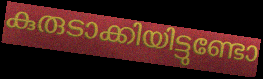
കുരുടാക്കിയിട്ടുണ്ടോ